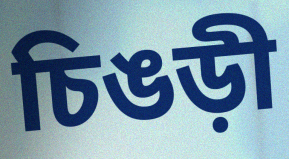
চিঙড়ী